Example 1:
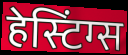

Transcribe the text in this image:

हेस्टिंग्स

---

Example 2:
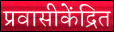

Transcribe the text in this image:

प्रवासीकेंद्रित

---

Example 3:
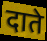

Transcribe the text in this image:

दाते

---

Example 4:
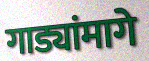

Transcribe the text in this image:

गाड्यांमागे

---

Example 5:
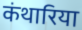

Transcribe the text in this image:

कंथारिया